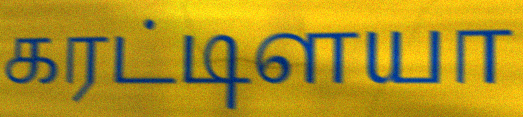
கரட்டிளயா